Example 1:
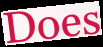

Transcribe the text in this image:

Does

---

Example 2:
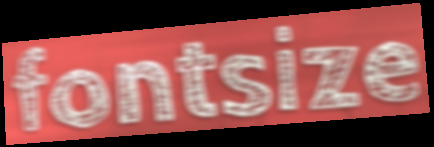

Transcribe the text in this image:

fontsize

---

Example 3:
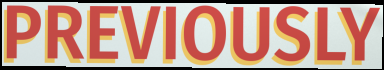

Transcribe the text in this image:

PREVIOUSLY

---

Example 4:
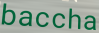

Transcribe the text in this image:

baccha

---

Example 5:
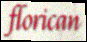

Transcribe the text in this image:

florican